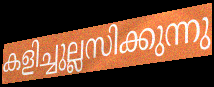
കളിച്ചുല്ലസിക്കുന്നു